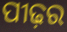
ପୀଢ଼ର